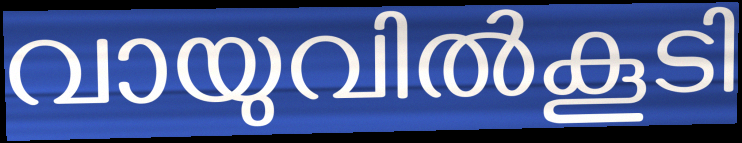
വായുവിൽകൂടി